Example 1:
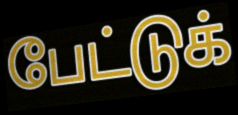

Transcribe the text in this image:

பேட்டுக்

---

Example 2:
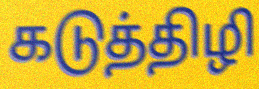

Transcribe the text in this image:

கடுத்திழி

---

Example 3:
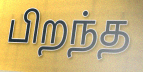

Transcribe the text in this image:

பிறந்த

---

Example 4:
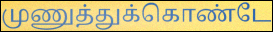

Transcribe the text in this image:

முணுத்துக்கொண்டே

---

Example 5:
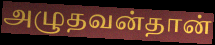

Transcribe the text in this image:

அழுதவன்தான்